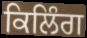
ਕਿਲਿੰਗ